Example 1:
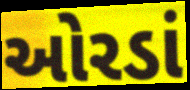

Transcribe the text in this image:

ઓરડાં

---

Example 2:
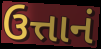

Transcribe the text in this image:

ઉત્તાનં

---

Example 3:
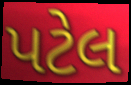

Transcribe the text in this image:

પટેલ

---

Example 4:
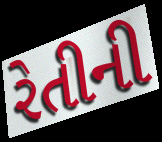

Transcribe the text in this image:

રેતીની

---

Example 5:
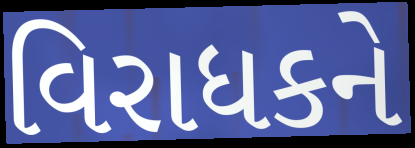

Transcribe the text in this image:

વિરાધકને